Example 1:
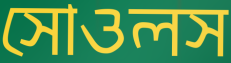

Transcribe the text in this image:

সোওলস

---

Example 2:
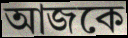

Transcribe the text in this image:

আজকে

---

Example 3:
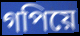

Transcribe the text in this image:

গপিয়ে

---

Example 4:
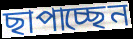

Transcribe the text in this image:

ছাপাচ্ছেন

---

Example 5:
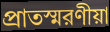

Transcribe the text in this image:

প্রাতস্মরণীয়া